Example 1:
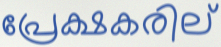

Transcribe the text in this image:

പ്രേക്ഷകരില്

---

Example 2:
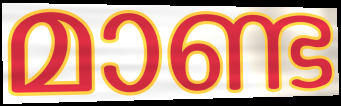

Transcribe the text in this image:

മാണ്ട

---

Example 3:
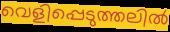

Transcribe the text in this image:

വെളിപ്പെടുത്തലിൽ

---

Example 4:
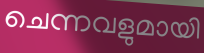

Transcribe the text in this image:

ചെന്നവളുമായി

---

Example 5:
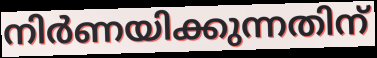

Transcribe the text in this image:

നിർണയിക്കുന്നതിന്